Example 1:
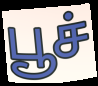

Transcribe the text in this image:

பூச்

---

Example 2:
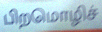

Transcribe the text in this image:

பிறமொழிச்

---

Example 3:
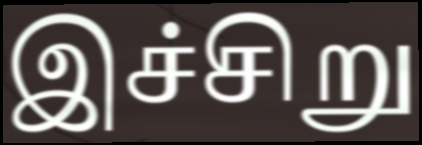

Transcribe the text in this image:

இச்சிறு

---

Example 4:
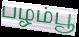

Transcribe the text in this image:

பழம்பூ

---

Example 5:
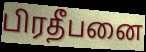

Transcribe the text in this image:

பிரதீபனை